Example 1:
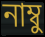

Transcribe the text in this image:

নাম্বু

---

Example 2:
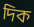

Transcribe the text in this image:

দিক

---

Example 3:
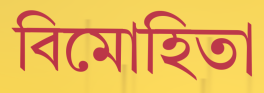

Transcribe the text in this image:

বিমোহিতা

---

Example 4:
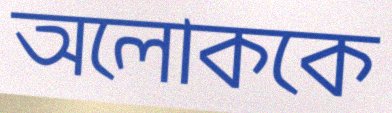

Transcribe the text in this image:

অলোককে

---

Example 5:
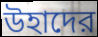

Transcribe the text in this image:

উহাদের